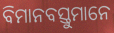
ବିମାନବସ୍ତୁମାନେ